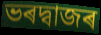
ভৰদ্বাজৰ